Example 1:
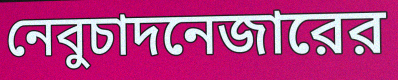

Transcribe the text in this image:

নেবুচাদনেজারের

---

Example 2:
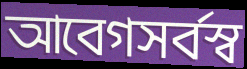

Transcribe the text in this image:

আবেগসর্বস্ব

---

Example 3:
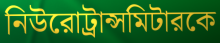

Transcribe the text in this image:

নিউরোট্রান্সমিটারকে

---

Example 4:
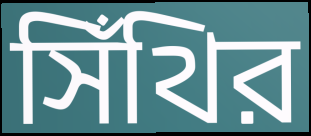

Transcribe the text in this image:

সিঁথির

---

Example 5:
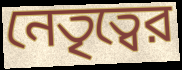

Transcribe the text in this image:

নেতৃত্বের